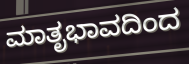
ಮಾತೃಭಾವದಿಂದ